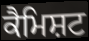
ਕੈਮਿਸ਼ਟ